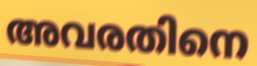
അവരതിനെ